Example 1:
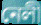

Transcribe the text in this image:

নেলী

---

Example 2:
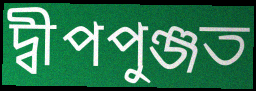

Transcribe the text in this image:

দ্বীপপুঞ্জত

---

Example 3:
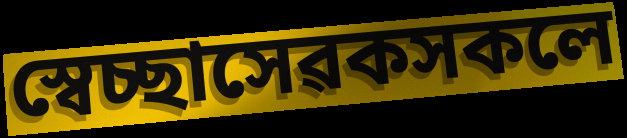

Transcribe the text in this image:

স্বেচ্ছাসেৱকসকলে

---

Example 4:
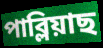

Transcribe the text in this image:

পাব্লিয়াছ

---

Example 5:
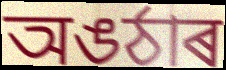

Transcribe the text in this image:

অঙঠাৰ